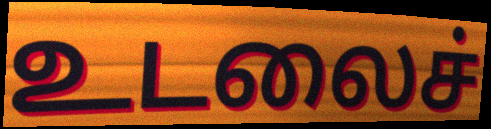
உடலைச்